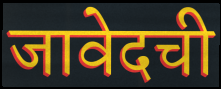
जावेदची